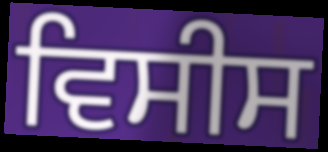
ਵਿਸੀਸ